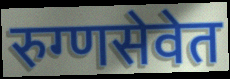
रुग्णसेवेत